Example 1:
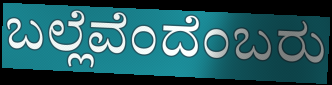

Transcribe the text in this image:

ಬಲ್ಲೆವೆಂದೆಂಬರು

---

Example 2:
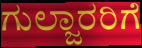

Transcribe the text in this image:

ಗುಲ್ಜಾರರಿಗೆ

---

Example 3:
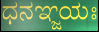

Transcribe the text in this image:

ಧನಞ್ಜಯಃ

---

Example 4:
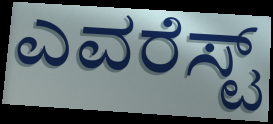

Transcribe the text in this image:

ಎವರೆಸ್ಟ್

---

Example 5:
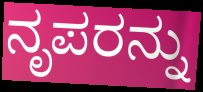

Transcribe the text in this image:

ನೃಪರನ್ನು